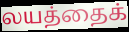
லயத்தைக்